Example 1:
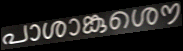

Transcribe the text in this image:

പാശാങ്കുശൌ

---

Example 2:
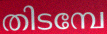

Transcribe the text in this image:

തിടമ്പേ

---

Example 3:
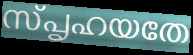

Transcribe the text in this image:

സ്പൃഹയതേ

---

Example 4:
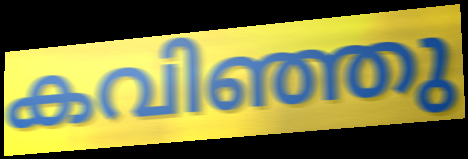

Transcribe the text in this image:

കവിഞ്ഞു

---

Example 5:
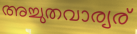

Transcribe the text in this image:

അച്ചുതവാര്യര്